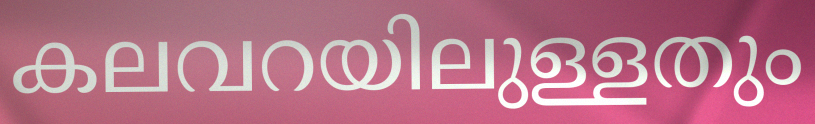
കലവറയിലുള്ളതും